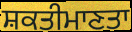
ਸ਼ਕਤੀਮਾਣਤਾ